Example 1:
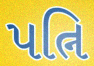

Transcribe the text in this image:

પત્નિ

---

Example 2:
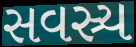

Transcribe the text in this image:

સવસ્ર્ય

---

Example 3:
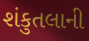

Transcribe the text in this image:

શંકુતલાની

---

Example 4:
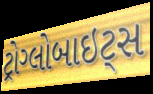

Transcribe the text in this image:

ટ્રોગ્લોબાઇટ્સ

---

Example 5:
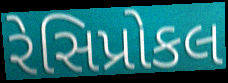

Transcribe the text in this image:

રેસિપ્રોકલ